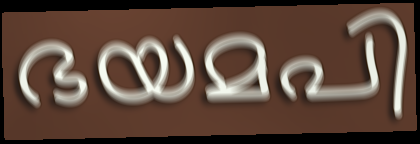
ഭയമപി